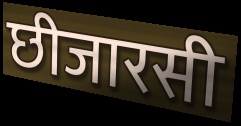
छीजारसी